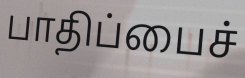
பாதிப்பைச்